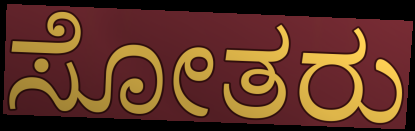
ಸೋತರು